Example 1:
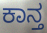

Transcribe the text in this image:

ಕಾನ್ತ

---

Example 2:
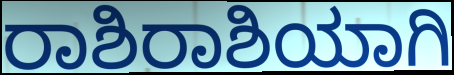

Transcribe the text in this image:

ರಾಶಿರಾಶಿಯಾಗಿ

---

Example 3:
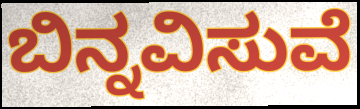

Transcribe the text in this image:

ಬಿನ್ನವಿಸುವೆ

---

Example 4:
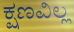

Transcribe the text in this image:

ಕ್ಷಣವಿಲ್ಲ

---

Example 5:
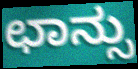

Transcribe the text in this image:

ಛಾನ್ಸು